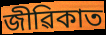
জীৱিকাত